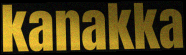
kanakka